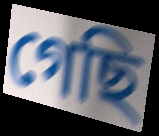
গেছি